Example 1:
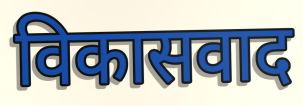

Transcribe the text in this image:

विकासवाद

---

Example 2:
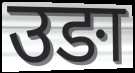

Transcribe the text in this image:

उङा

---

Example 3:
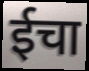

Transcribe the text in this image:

ईचा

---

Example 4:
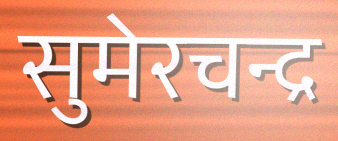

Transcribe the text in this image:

सुमेरचन्द्र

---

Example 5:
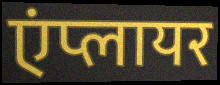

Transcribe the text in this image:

एंप्लायर